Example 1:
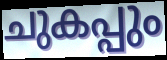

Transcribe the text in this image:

ചുകപ്പും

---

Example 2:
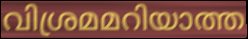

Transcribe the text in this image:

വിശ്രമമറിയാത്ത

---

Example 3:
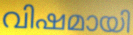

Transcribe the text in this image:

വിഷമായി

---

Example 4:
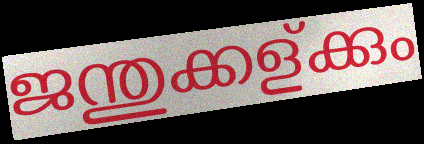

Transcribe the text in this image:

ജന്തുക്കള്ക്കും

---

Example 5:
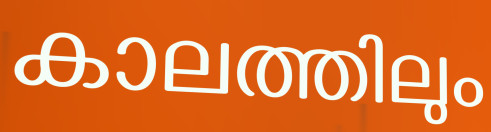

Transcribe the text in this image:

കാലത്തിലും